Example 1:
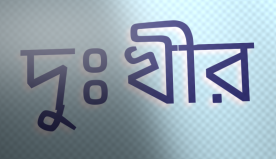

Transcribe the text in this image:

দুঃখীর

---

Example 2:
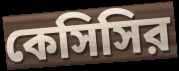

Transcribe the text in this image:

কেসিসির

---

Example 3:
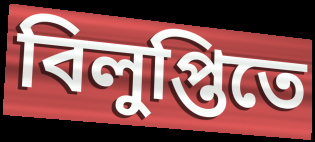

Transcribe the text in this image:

বিলুপ্তিতে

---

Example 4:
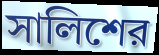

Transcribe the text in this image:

সালিশের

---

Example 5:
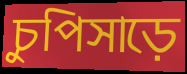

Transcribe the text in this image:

চুপিসাড়ে